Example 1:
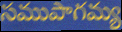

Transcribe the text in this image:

సముపాగమ్య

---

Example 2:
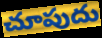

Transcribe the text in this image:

చూపుదు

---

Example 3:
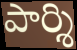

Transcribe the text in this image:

పార్శి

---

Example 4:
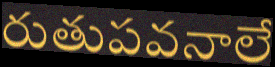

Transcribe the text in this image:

రుతుపవనాలే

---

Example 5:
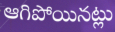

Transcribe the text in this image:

ఆగిపోయినట్లు